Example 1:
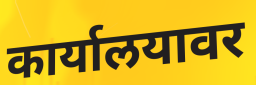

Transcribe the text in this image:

कार्यालयावर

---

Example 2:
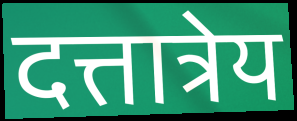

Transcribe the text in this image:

दत्तात्रेय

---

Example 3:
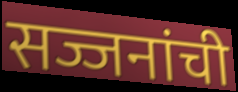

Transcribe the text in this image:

सज्जनांची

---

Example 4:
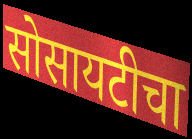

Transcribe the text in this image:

सोसायटीचा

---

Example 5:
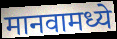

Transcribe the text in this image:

मानवामध्ये